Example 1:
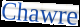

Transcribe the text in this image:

Chawre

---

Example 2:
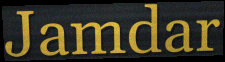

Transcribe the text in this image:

Jamdar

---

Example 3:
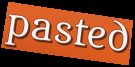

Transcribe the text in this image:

pasted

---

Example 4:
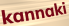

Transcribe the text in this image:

kannaki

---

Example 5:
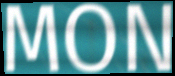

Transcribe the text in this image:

MON